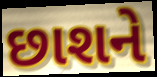
છાશને